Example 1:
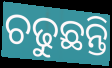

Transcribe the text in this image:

ଚଢୁଛନ୍ତି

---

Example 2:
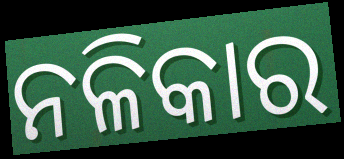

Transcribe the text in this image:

ନଳିକାର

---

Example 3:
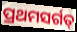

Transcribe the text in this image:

ପ୍ରଥମସର୍ଗତ୍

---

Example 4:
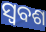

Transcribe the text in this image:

ସ୍ଵବଶ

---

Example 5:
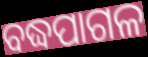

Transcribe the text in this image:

ବଦ୍ଧପାଗଳ